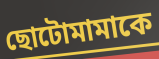
ছোটোমামাকে